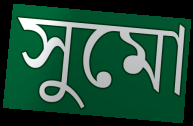
সুমো